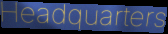
Headquarters